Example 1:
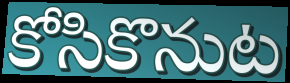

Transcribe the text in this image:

కోసికొనుట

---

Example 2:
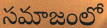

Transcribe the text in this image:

సమాజంలో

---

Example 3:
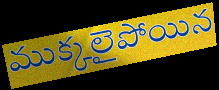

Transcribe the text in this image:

ముక్కలైపోయిన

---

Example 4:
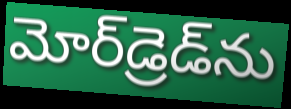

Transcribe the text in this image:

మోర్‌డ్రెడ్‌ను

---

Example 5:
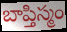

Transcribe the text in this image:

బాప్తిస్మం